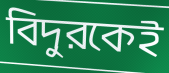
বিদুরকেই